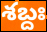
శబ్దః